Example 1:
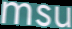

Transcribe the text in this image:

msu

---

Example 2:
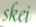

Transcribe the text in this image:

skei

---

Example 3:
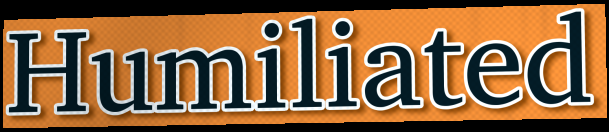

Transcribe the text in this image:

Humiliated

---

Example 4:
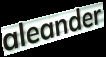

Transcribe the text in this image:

aleander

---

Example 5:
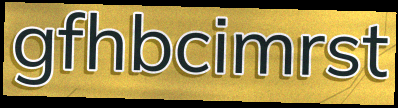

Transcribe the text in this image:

gfhbcimrst